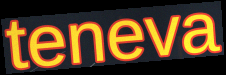
teneva